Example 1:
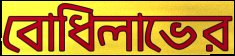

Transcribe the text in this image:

বোধিলাভের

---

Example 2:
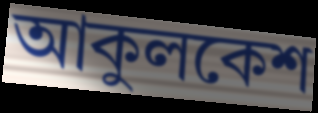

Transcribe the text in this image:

আকুলকেশ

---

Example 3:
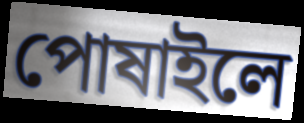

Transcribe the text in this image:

পোষাইলে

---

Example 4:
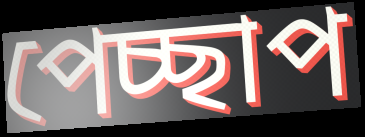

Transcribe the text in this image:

পেচ্ছাপ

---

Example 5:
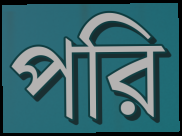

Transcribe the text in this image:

পরি